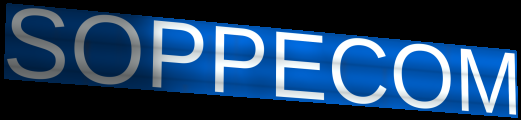
SOPPECOM